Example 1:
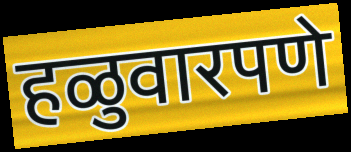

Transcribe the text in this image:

हळुवारपणे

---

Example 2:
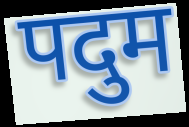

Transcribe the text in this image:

पदुम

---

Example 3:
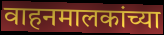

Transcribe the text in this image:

वाहनमालकांच्या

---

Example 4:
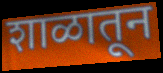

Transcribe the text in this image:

शाळातून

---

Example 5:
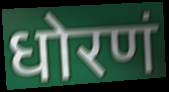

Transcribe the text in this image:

धोरणं